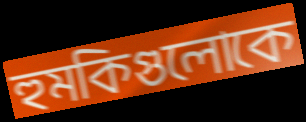
হুমকিগুলোকে